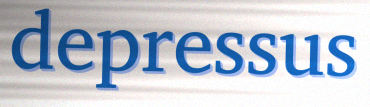
depressus